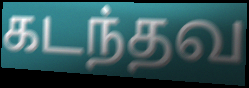
கடந்தவ